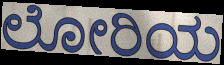
ಲೋರಿಯ